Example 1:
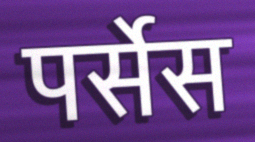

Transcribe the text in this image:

पर्सेस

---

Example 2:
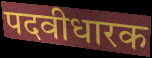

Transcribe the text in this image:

पदवीधारक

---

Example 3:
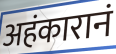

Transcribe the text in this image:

अहंकारानं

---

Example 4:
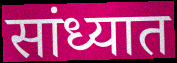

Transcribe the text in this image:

सांध्यात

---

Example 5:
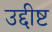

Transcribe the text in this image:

उद्दीष्ट